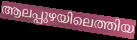
ആലപ്പുഴയിലെത്തിയ